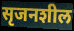
सृजनशील